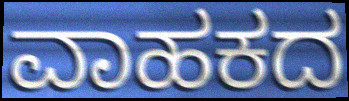
ವಾಹಕದ